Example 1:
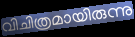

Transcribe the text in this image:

വിചിത്രമായിരുന്നു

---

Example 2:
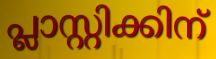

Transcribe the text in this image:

പ്ലാസ്റ്റിക്കിന്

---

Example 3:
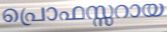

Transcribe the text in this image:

പ്രൊഫസ്സറായ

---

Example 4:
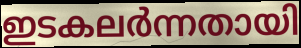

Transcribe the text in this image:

ഇടകലർന്നതായി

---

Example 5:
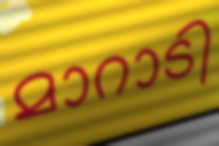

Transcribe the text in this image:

മാറാടി